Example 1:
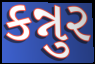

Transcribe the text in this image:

કન્નુર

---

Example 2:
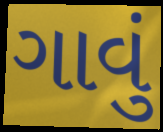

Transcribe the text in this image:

ગાવું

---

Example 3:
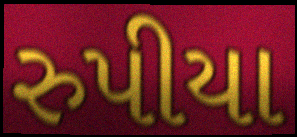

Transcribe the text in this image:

રુપીયા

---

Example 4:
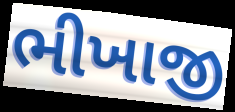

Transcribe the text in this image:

ભીખાજી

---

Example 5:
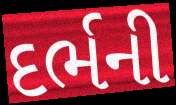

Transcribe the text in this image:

દર્ભની